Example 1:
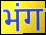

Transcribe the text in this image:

भंग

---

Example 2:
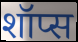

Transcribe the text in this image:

शॉप्स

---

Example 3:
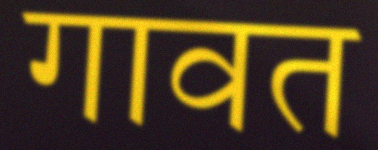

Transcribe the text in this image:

गावत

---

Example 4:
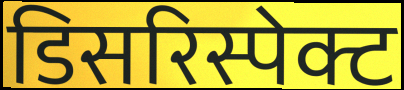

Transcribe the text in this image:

डिसरिस्पेक्ट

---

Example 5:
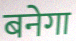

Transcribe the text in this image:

बनेगा